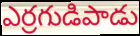
ఎర్రగుడిపాడు